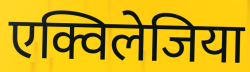
एक्विलेजिया